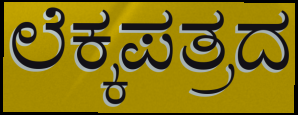
ಲೆಕ್ಕಪತ್ರದ